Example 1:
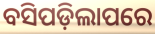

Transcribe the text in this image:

ବସିପଡ଼ିଲାପରେ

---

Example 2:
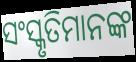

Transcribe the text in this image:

ସଂସ୍କୃତିମାନଙ୍କ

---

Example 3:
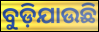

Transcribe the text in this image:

ବୁଡ଼ିଯାଉଛି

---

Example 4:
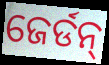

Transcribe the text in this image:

ଜେର୍ଡନ୍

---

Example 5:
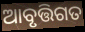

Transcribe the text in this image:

ଆବୃତ୍ତିଗତ